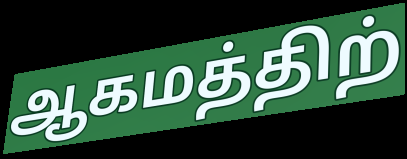
ஆகமத்திற்